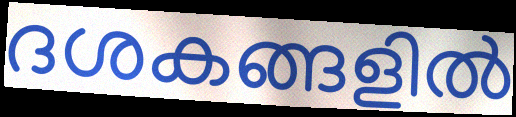
ദശകങ്ങളിൽ